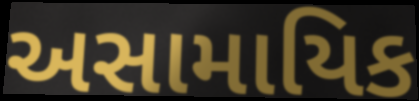
અસામાયિક